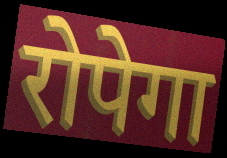
रोपेगा